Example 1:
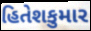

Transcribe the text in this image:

હિતેશકુમાર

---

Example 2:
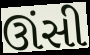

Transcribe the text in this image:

ઊંસી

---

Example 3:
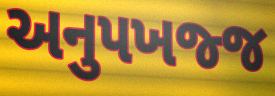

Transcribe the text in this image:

અનુપખજ્જ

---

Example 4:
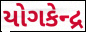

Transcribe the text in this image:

યોગકેન્દ્ર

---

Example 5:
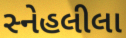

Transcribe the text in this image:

સ્નેહલીલા